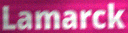
Lamarck